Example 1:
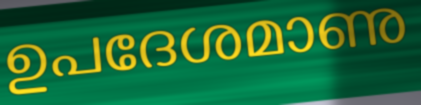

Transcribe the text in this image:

ഉപദേശമാണു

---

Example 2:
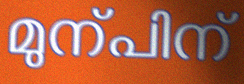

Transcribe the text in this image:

മുന്പിന്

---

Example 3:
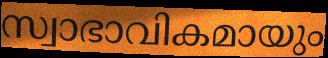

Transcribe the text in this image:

സ്വാഭാവികമായും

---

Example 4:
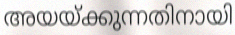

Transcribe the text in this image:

അയയ്ക്കുന്നതിനായി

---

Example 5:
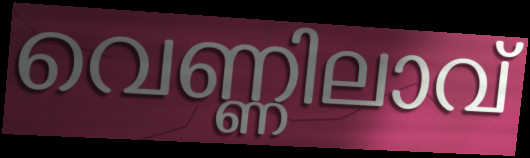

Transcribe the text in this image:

വെണ്ണിലാവ്